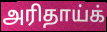
அரிதாய்க்